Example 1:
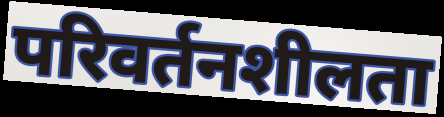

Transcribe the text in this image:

परिवर्तनशीलता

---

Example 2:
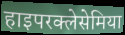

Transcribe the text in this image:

हाइपरक्लेसेमिया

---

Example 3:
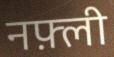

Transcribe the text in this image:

नफ़्ली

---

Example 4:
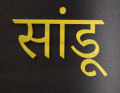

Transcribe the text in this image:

सांडू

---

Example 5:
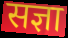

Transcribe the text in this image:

सज्ञा